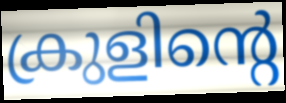
ക്രുളിന്റെ